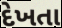
દેખતા